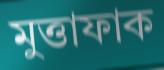
মুত্তাফাক